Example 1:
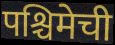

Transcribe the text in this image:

पश्चिमेची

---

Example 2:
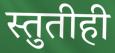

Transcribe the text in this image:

स्तुतीही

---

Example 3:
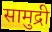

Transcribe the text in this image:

सामुद्री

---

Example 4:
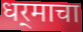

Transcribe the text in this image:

धर्माचा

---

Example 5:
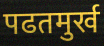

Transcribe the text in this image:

पढतमुर्ख